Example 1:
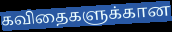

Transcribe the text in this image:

கவிதைகளுக்கான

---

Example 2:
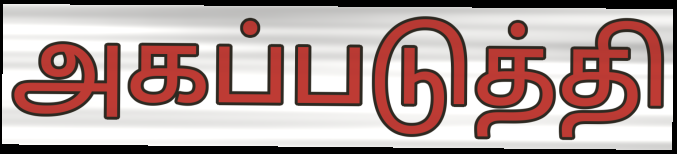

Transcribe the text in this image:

அகப்படுத்தி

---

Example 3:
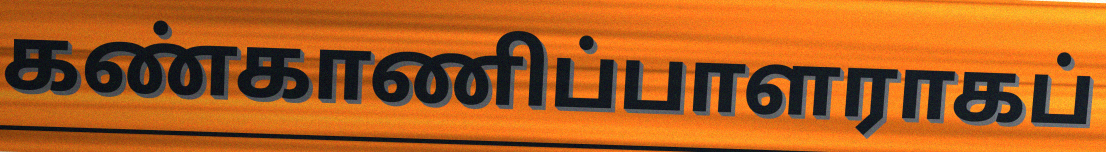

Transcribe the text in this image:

கண்காணிப்பாளராகப்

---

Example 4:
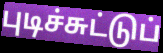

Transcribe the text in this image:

புடிச்சுட்டுப்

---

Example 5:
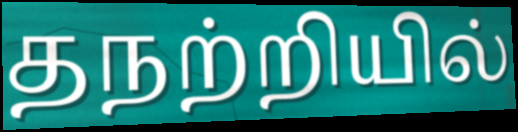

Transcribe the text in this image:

தநற்றியில்